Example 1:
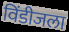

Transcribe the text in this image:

विंडीजला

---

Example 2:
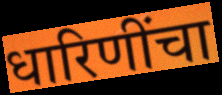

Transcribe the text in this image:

धारिणींचा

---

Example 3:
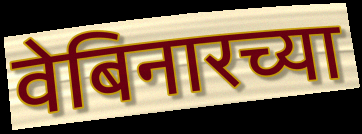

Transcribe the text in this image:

वेबिनारच्या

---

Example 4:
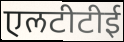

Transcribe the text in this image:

एलटीटीई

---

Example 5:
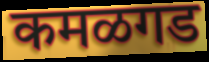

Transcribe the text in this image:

कमळगड